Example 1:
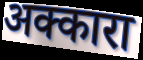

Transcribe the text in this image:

अक्कारा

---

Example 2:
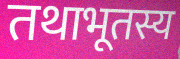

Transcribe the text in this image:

तथाभूतस्य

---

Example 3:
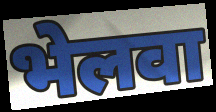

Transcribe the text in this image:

भेलवा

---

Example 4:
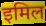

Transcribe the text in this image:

इमिल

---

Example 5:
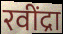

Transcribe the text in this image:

रवींद्रा